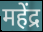
महेंद्र